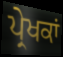
ਪ੍ਰੇਖਕਾਂ